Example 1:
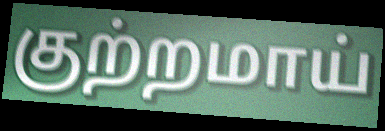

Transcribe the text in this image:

குற்றமாய்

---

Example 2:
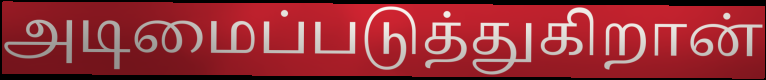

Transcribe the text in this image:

அடிமைப்படுத்துகிறான்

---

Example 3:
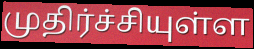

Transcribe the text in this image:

முதிர்ச்சியுள்ள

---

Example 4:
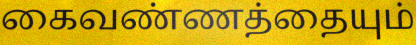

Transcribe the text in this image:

கைவண்ணத்தையும்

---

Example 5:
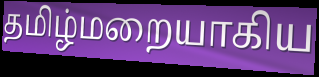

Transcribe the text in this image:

தமிழ்மறையாகிய